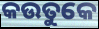
କଉତୁକେ